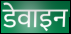
डेवाइन